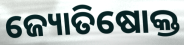
ଜ୍ୟୋତିଷୋକ୍ତ